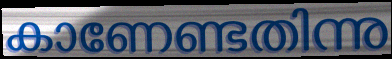
കാണേണ്ടതിന്നു